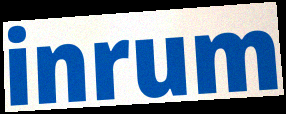
inrum